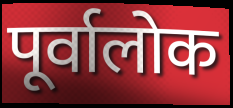
पूर्वालोक